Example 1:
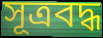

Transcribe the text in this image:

সূত্রবদ্ধ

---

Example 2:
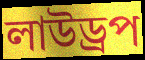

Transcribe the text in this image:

লাউড্রপ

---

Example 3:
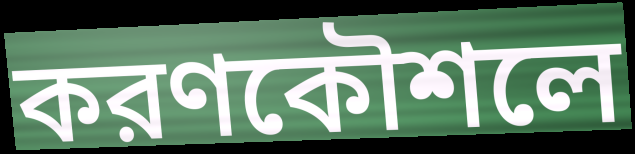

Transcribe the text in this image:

করণকৌশলে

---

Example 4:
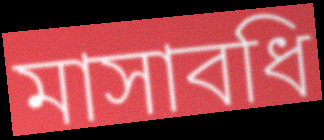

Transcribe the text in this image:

মাসাবধি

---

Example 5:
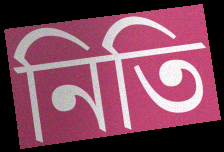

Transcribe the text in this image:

নিতি